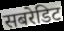
सबरेडिट